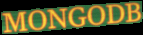
MONGODB